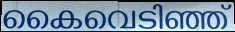
കൈവെടിഞ്ഞ്